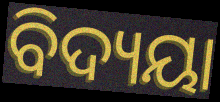
ବିଦ୍ୟୟା